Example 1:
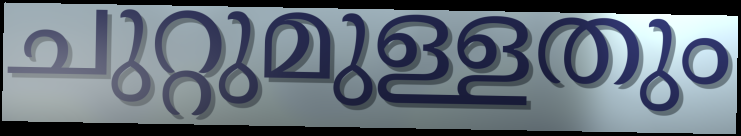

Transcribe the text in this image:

ചുറ്റുമുള്ളതും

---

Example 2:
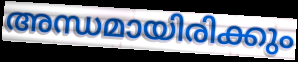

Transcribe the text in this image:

അന്ധമായിരിക്കും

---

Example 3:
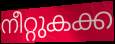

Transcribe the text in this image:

നീറ്റുകക്ക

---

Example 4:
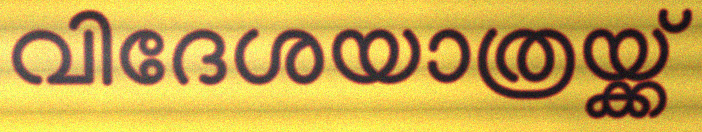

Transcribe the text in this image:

വിദേശയാത്രയ്ക്ക്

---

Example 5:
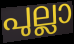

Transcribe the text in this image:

പുല്ലാ